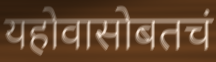
यहोवासोबतचं